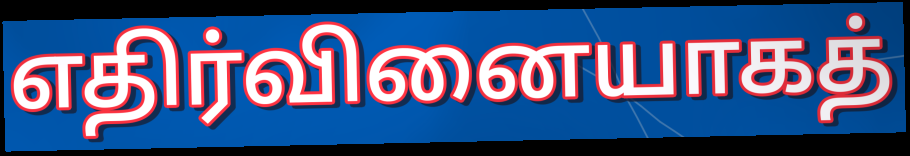
எதிர்வினையாகத்